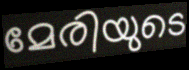
മേരിയുടെ